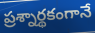
ప్రశ్నార్థకంగానే